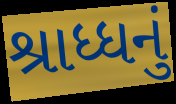
શ્રાધ્ધનું